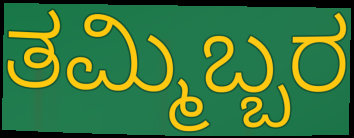
ತಮ್ಮಿಬ್ಬರ